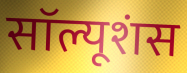
सॉल्यूशंस